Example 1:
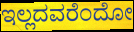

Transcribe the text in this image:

ಇಲ್ಲದವರೆಂದೋ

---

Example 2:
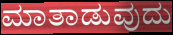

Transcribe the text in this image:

ಮಾತಾಡುವುದು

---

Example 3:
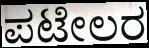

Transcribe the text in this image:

ಪಟೇಲರ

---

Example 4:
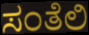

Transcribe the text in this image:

ಸಂತೆಲಿ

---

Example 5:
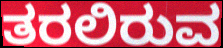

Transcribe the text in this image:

ತರಲಿರುವ